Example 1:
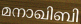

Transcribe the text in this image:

മനാഖിബി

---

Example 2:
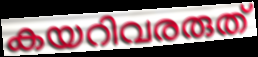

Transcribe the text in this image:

കയറിവരരുത്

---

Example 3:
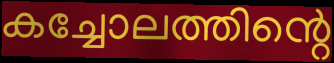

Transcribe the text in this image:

കച്ചോലത്തിന്റെ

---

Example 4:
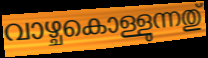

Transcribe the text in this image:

വാഴ്ചകൊള്ളുന്നതു്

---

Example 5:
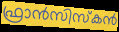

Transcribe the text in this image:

ഫ്രാൻസിസ്കൻ